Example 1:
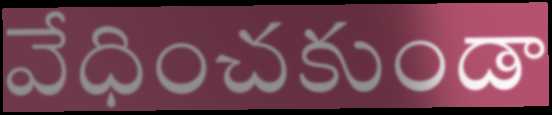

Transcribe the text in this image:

వేధించకుండా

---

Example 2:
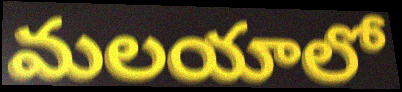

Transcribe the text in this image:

మలయాలో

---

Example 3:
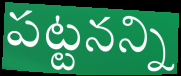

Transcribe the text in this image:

పట్టనన్ని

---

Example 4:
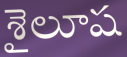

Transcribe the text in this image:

శైలూష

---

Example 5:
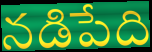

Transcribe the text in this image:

నడిపేది